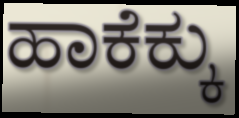
ಹಾಕೆಕ್ಕು